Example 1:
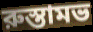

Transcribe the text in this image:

রুস্তামভ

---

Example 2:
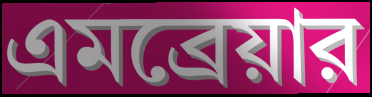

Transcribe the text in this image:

এমব্রেয়ার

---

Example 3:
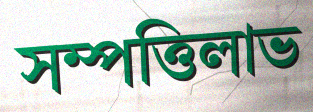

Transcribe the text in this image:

সম্পত্তিলাভ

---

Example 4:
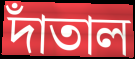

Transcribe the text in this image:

দাঁতাল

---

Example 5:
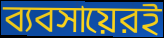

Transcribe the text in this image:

ব্যবসায়েরই